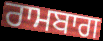
ਰਾਮਬਾਗ